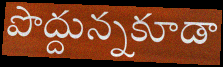
పొద్దున్నకూడా